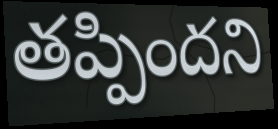
తప్పిందని